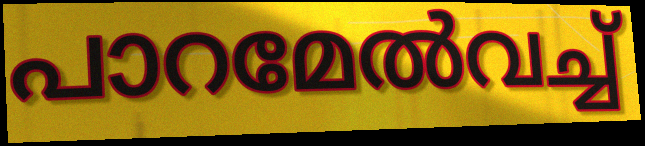
പാറമേൽവച്ച്